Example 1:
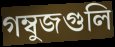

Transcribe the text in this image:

গম্বুজগুলি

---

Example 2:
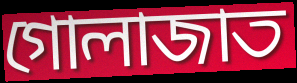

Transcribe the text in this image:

গোলাজাত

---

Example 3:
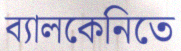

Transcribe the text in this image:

ব্যালকেনিতে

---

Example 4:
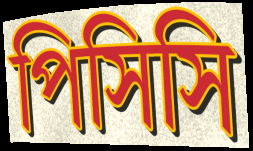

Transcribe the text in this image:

পিসিসি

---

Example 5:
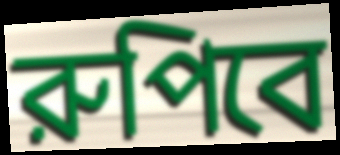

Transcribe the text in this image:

রুপিবে